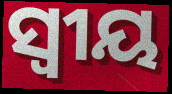
ସ୍ୱୀୟ